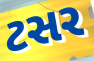
ટસર